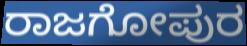
ರಾಜಗೋಪುರ